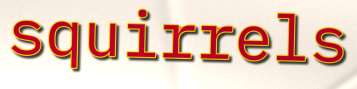
squirrels